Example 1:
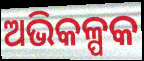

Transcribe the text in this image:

ଅଭିକଳ୍ପକ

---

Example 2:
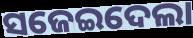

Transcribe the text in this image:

ସଜେଇଦେଲା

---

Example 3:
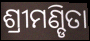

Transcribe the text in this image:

ଶ୍ରୀମଣ୍ଡିତା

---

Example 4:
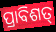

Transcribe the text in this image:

ପ୍ରାବିଶତ୍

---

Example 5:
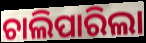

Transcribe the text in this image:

ଚାଲିପାରିଲା